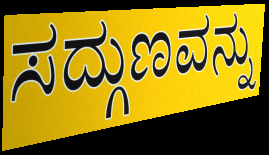
ಸದ್ಗುಣವನ್ನು